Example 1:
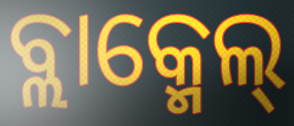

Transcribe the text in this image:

ବ୍ଲାକ୍ମେଲ୍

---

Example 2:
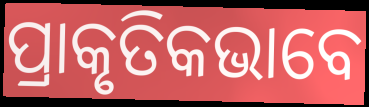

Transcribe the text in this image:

ପ୍ରାକୃତିକଭାବେ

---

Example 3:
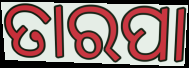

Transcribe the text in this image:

ତାରପା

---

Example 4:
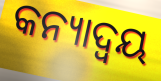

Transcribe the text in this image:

କନ୍ୟାଦ୍ୱୟ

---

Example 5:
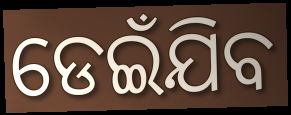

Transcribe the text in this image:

ଡେଇଁଯିବ